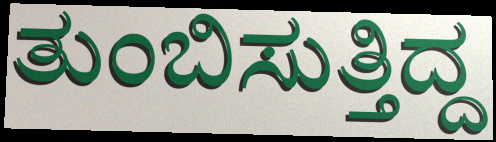
ತುಂಬಿಸುತ್ತಿದ್ದ